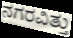
ನಗರವಿತ್ತು